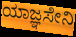
ಯಾಜ್ಞಸೇನಿ